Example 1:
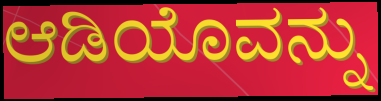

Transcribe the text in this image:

ಆಡಿಯೊವನ್ನು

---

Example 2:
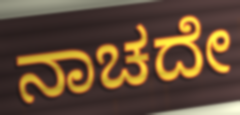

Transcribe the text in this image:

ನಾಚದೇ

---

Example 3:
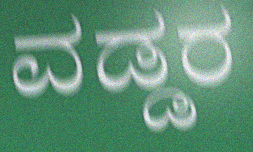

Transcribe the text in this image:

ವಡ್ಡರ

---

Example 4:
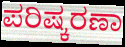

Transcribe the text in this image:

ಪರಿಷ್ಕರಣಾ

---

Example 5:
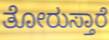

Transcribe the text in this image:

ತೋರುಸ್ತಾರೆ